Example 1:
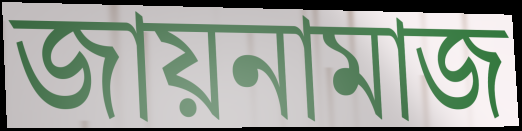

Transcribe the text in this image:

জায়নামাজ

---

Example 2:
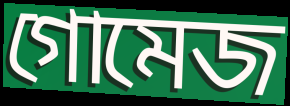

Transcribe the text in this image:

গোমেজ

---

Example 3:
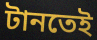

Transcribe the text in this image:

টানতেই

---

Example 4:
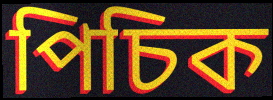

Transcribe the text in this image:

পিচিক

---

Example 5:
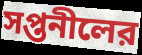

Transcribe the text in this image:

সপ্তনীলের